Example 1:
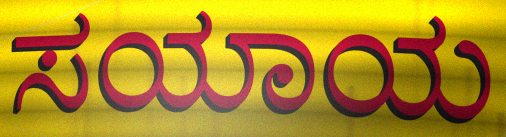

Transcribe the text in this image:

ಸಯಾಯ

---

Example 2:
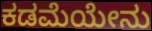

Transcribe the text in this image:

ಕಡಮೆಯೇನು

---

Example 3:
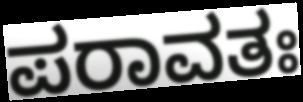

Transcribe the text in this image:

ಪರಾವತಃ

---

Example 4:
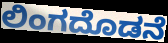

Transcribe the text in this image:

ಲಿಂಗದೊಡನೆ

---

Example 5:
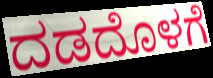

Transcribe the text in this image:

ದಡದೊಳಗೆ